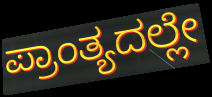
ಪ್ರಾಂತ್ಯದಲ್ಲೇ